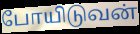
போயிடுவன்